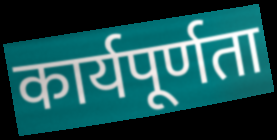
कार्यपूर्णता